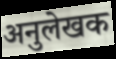
अनुलेखक